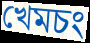
খেমচং